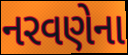
નરવણેના